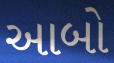
આબો